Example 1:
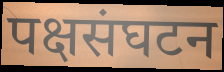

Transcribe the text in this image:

पक्षसंघटन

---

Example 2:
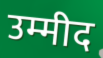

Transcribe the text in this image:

उम्मीद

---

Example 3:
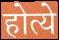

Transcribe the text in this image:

होत्ये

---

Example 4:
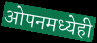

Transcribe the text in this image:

ओपनमध्येही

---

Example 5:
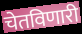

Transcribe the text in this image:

चेतविणारी